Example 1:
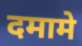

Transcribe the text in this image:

दमामे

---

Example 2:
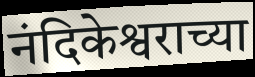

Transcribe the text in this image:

नंदिकेश्वराच्या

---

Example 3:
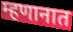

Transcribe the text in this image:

म्हणानात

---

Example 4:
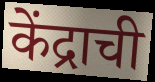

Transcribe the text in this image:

केंद्राची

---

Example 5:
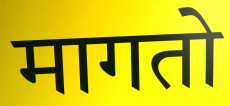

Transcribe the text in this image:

मागतो